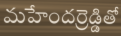
మహేందర్రెడ్డితో